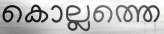
കൊല്ലത്തെ